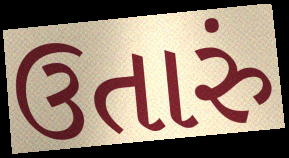
ઉતારું